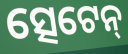
ତ୍ସେଟେନ୍